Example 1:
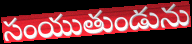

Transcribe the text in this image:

సంయుతుండును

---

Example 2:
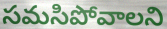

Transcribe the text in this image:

సమసిపోవాలని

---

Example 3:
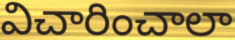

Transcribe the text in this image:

విచారించాలా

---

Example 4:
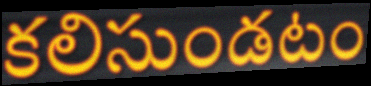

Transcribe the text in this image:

కలిసుండటం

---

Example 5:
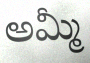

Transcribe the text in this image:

అమ్మీ